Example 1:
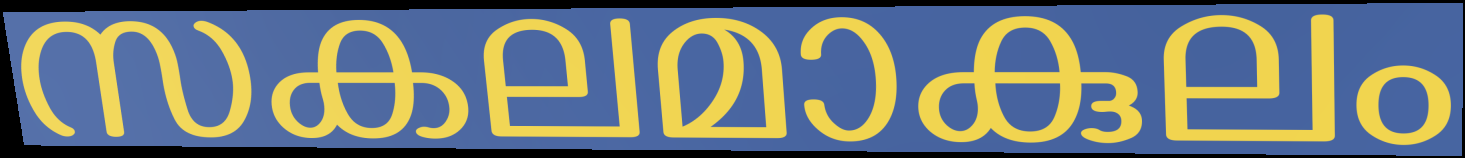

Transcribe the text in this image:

സകലമാകുലം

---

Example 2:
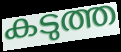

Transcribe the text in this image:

കടുത്ത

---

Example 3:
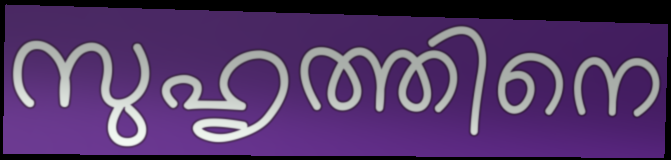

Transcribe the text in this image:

സുഹൃത്തിനെ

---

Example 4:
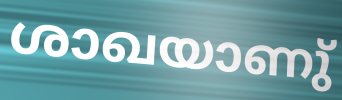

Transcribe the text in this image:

ശാഖയാണു്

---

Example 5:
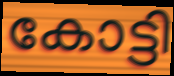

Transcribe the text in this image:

കോട്ടി